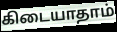
கிடையாதாம்